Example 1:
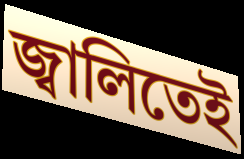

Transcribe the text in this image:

জ্বালিতেই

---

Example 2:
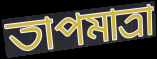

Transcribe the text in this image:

তাপমাত্রা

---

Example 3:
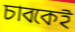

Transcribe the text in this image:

চাবকেই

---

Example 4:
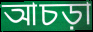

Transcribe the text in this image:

আচড়া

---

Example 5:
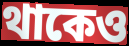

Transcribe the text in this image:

থাকেও